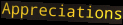
Appreciations